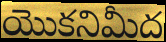
యొకనిమీద